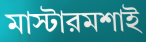
মাস্টারমশাই